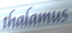
thalamus